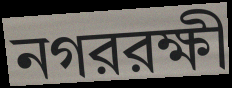
নগররক্ষী